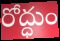
రోద్ధుం